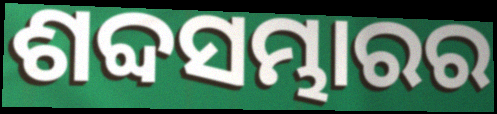
ଶବ୍ଦସମ୍ଭାରର